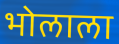
भोलाला